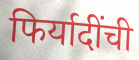
फिर्यादींची